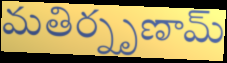
మతిర్నృణామ్